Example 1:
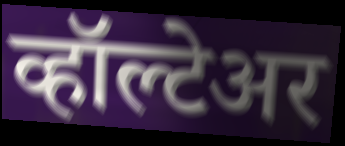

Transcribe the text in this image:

व्हॉल्टेअर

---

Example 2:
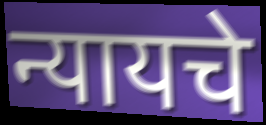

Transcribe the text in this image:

न्यायचे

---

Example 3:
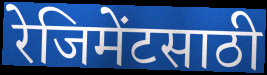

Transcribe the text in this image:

रेजिमेंटसाठी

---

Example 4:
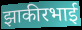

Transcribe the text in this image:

झाकीरभाई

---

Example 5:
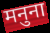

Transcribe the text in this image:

मनुना